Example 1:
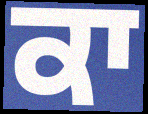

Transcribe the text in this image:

ਕਾ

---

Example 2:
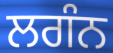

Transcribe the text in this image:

ਲਗੰਨ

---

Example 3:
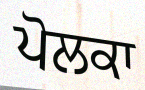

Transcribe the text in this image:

ਪੋਲਕਾ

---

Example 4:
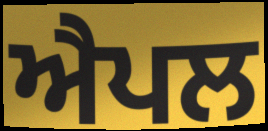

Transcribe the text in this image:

ਐਪਲ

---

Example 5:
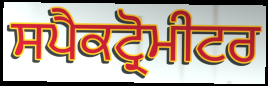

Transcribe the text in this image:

ਸਪੈਕਟ੍ਰੋਮੀਟਰ